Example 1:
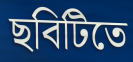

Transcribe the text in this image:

ছবিটিতে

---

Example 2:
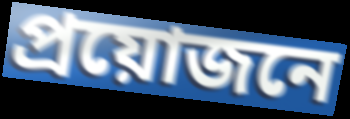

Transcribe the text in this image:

প্রয়োজনে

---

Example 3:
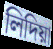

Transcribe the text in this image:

লিদিয়া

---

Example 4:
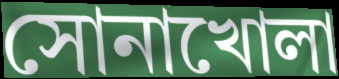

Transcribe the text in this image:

সোনাখোলা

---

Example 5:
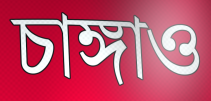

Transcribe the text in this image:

চাঙ্গাও